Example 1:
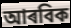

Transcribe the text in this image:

আৰবিক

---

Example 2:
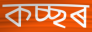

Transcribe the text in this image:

কচ্ছৰ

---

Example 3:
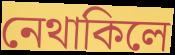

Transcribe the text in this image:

নেথাকিলে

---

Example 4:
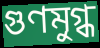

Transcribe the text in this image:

গুণমুগ্ধ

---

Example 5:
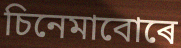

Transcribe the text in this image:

চিনেমাবোৰে